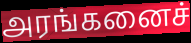
அரங்கனைச்